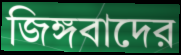
জিঙ্গবাদের